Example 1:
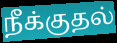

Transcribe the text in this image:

நீக்குதல்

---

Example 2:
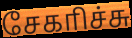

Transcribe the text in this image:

சேகரிச்சு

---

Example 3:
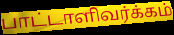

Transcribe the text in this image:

பாட்டாளிவர்க்கம்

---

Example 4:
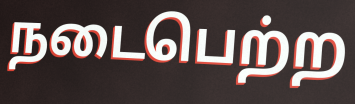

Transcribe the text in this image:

நடைபெற்ற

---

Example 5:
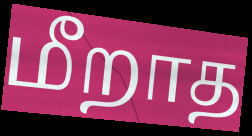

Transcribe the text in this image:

மீறாத